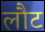
लौट